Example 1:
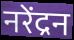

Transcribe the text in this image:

नरेंद्रन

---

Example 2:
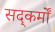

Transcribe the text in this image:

सद्कर्मों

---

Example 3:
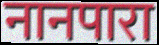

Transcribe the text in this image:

नानपारा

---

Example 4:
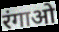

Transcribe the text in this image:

रंगाओ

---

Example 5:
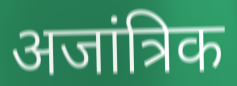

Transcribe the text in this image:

अजांत्रिक